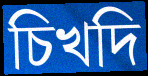
চিখদি